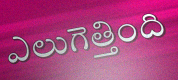
ఎలుగెత్తింది